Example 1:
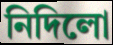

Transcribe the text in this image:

নিদিলো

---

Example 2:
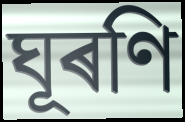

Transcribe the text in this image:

ঘূৰণি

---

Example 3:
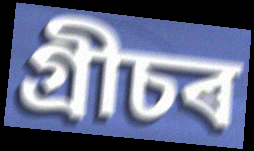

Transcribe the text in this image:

গ্ৰীচৰ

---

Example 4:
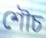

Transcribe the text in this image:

শৌচ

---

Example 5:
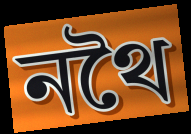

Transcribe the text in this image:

নথৈ